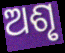
ଅଶୃ